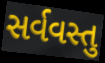
સર્વવસ્તુ